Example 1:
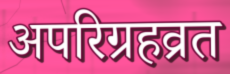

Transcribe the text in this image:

अपरिग्रहव्रत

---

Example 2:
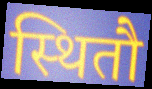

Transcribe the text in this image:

स्थितौ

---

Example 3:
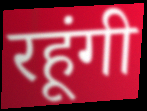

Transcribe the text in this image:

रहूंगी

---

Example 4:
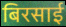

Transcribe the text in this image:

बिरसाई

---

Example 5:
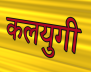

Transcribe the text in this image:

कलयुगी